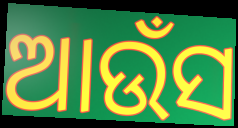
ଆଉଁସ